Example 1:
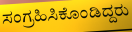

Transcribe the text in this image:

ಸಂಗ್ರಹಿಸಿಕೊಂಡಿದ್ದರು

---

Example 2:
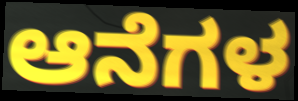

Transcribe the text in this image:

ಆನೆಗಳ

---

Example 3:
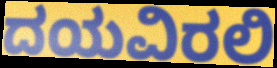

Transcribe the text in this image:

ದಯವಿರಲಿ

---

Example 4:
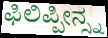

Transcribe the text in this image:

ಫಿಲಿಪ್ಪೀನ್ಸ್ನ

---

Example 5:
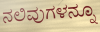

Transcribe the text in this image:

ನಲಿವುಗಳನ್ನೂ